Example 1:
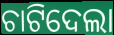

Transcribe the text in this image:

ଚାଟିଦେଲା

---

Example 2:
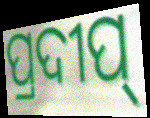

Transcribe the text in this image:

ପ୍ରଦୀପ୍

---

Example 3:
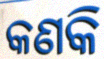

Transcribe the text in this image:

କଣକି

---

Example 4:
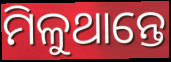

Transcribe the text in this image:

ମିଳୁଥାନ୍ତେ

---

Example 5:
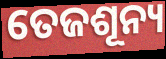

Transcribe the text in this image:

ତେଜଶୂନ୍ୟ